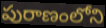
పురాణంలోని